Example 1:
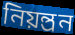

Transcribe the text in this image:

নিয়ন্ত্রন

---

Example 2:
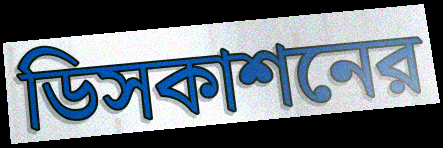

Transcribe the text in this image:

ডিসকাশনের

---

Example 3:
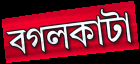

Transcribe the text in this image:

বগলকাটা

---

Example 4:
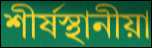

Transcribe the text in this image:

শীর্ষস্থানীয়া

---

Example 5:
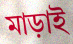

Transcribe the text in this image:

মাড়াই